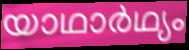
യാഥാർഥ്യം